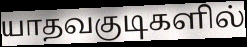
யாதவகுடிகளில்